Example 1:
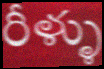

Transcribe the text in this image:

రీళ్ళు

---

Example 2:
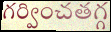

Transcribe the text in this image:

గర్వించతగ్గ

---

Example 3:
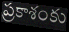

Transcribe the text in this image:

ప్రకాశంకు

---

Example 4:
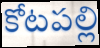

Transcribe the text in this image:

కోటపల్లి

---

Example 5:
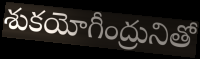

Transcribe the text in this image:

శుకయోగీంద్రునితో